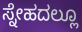
ಸ್ನೇಹದಲ್ಲೂ